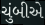
ચુંબીએ